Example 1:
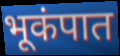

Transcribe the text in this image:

भूकंपात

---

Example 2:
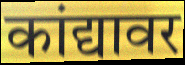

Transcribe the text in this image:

कांद्यावर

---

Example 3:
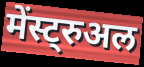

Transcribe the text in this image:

मेंस्ट्रुअल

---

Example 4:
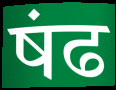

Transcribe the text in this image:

षंढ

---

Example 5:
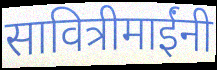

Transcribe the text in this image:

सावित्रीमाईंनी